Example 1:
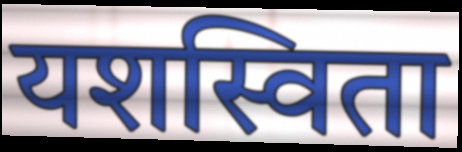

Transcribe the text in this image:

यशस्विता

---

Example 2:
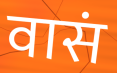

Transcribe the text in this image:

वासं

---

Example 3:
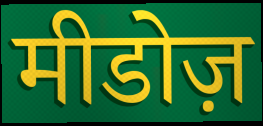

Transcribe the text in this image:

मीडोज़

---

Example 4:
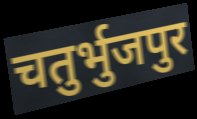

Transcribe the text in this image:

चतुर्भुजपुर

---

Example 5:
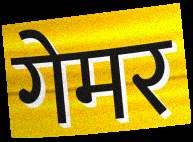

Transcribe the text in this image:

गेमर